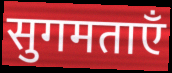
सुगमताएँ